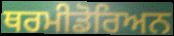
ਥਰਮੀਡੋਰਿਅਨ